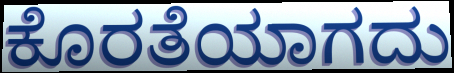
ಕೊರತೆಯಾಗದು